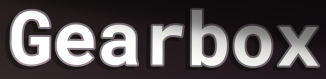
Gearbox